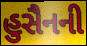
હુસૈનની